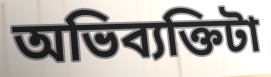
অভিব্যক্তিটা